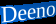
Deeno